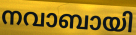
നവാബായി